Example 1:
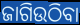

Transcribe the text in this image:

ଜାଗିଉଠିବା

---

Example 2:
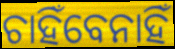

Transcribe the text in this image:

ଚାହିଁବେନାହିଁ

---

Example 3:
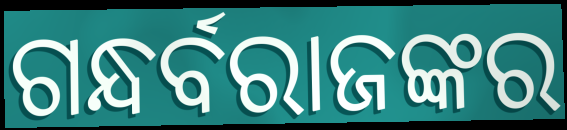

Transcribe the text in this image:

ଗନ୍ଧର୍ବରାଜଙ୍କର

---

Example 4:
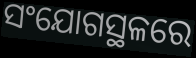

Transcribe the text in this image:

ସଂଯୋଗସ୍ଥଳରେ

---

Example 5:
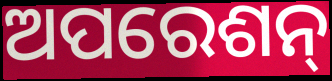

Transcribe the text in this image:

ଅପରେଶନ୍